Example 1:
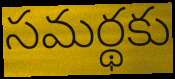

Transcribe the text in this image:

సమర్థకు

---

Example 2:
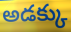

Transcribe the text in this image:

అడక్కు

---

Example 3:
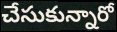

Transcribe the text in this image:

చేసుకున్నారో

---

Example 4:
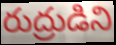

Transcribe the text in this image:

రుద్రుడిని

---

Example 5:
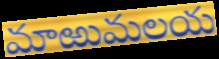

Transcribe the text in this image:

మాఱుమలయ